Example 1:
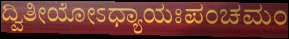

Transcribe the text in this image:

ದ್ವಿತೀಯೋಽಧ್ಯಾಯಃಪಂಚಮಂ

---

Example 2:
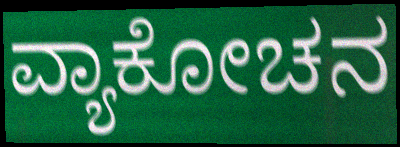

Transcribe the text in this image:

ವ್ಯಾಕೋಚನ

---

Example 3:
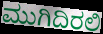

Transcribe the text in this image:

ಮುಗಿದಿರಲಿ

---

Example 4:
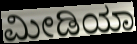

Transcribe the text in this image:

ಮೀಡಿಯಾ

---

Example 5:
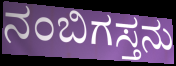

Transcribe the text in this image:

ನಂಬಿಗಸ್ತನು